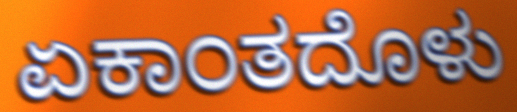
ಏಕಾಂತದೊಳು